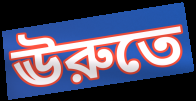
ঊরুতে